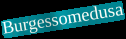
Burgessomedusa